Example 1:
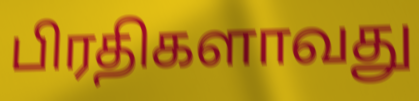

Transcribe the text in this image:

பிரதிகளாவது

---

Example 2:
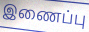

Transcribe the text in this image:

இணைப்பு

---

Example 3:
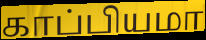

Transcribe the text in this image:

காப்பியமா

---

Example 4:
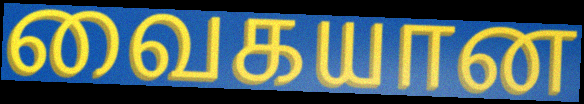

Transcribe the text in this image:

வைகயான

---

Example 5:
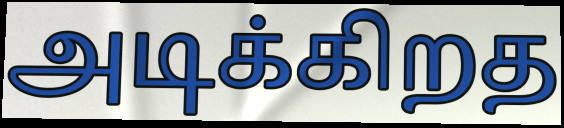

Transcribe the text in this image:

அடிக்கிறத